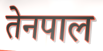
तेनपाल